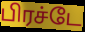
பிரச்டே